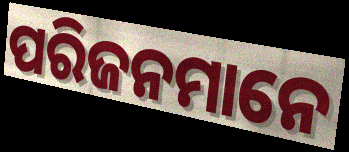
ପରିଜନମାନେ